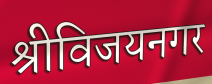
श्रीविजयनगर